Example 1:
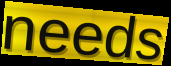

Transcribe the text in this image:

needs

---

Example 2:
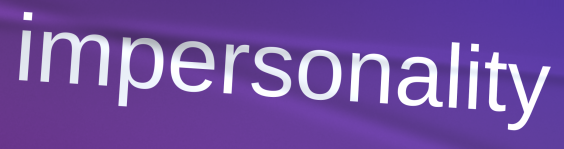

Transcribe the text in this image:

impersonality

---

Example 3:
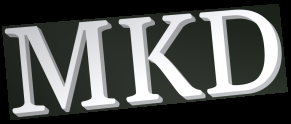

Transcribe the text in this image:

MKD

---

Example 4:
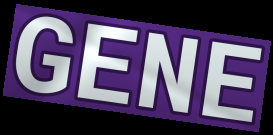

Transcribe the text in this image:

GENE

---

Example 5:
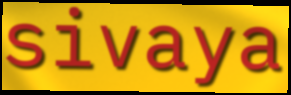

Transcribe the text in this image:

sivaya